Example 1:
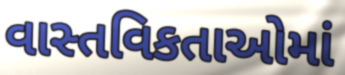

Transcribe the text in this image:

વાસ્તવિકતાઓમાં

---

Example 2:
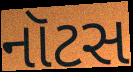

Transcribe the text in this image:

નૉટસ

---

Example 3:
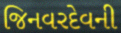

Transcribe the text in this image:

જિનવરદેવની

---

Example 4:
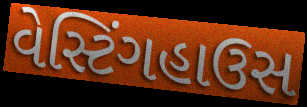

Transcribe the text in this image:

વેસ્ટિંગહાઉસ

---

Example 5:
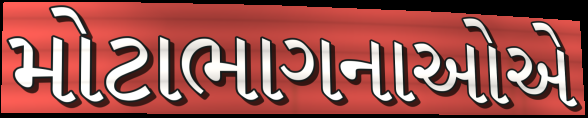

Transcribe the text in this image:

મોટાભાગનાઓએ